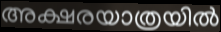
അക്ഷരയാത്രയിൽ